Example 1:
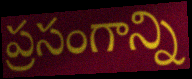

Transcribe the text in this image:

ప్రసంగాన్ని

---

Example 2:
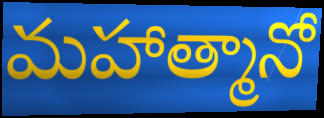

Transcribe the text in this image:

మహాత్మానో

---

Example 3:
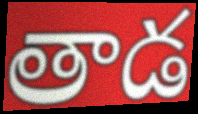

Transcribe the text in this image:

తాడ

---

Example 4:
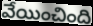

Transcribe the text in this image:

వేయించింది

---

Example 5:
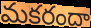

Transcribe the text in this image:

మకరందా